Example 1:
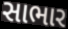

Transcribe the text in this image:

સાભાર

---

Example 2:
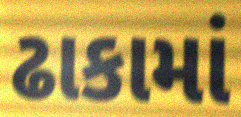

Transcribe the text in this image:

ઢાકામાં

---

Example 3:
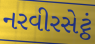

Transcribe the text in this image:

નરવીરસેટ્ઠં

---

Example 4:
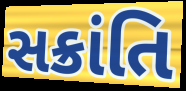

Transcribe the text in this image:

સક્રાંતિ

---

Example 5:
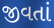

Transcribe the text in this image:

જીવતાં